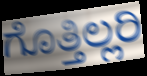
ಗೊತ್ತಿಲ್ಲರಿ